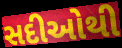
સદીઓથી